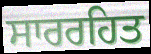
ਸਾਰਰਹਿਤ